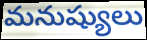
మనుష్యులు